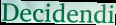
Decidendi